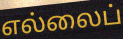
எல்லைப்